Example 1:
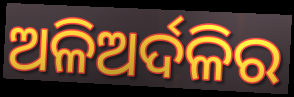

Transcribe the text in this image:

ଅଳିଅର୍ଦଳିର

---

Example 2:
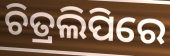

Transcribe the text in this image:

ଚିତ୍ରଲିପିରେ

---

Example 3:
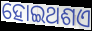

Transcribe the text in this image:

ହୋଇଥଶଏ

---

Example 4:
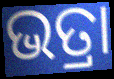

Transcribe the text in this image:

ଭତ୍ରା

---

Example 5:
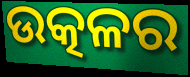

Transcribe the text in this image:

ଉତ୍କଳର